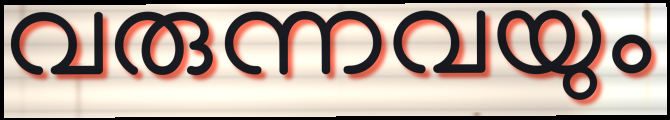
വരുന്നവയും